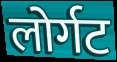
लोर्गट